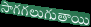
సాగగలుగుతాయి